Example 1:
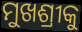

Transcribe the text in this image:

ମୁଖଶ୍ରୀକୁ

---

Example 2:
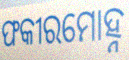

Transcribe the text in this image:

ଫକୀରମୋହ୍ନ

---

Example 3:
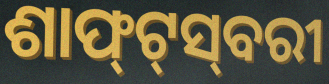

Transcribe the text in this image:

ଶାଫ୍‍ଟ୍‍ସ୍‍ବରୀ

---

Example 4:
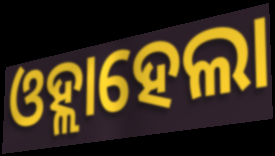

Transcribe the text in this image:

ଓହ୍ଲାହେଲା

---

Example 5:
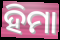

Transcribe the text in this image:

ହିମା